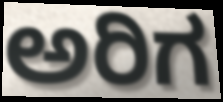
ಅರಿಗ